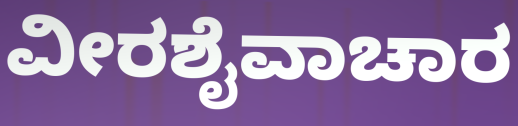
ವೀರಶೈವಾಚಾರ